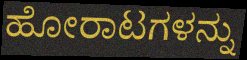
ಹೋರಾಟಗಳನ್ನು